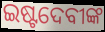
ଇଷ୍ଟଦେବୀଙ୍କ